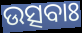
ଉତ୍ସବାଃ